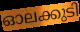
ഓലക്കുടി